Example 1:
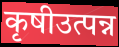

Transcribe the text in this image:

कृषीउत्पन्न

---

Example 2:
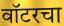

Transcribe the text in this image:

वॉटरचा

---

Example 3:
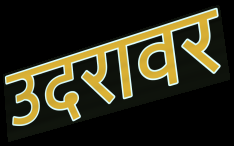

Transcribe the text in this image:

उदरावर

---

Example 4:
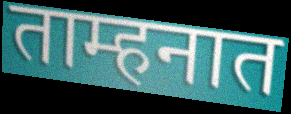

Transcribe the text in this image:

ताम्हनात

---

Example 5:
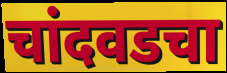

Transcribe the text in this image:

चांदवडचा